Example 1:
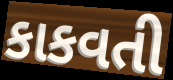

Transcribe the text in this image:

કાકવતી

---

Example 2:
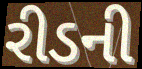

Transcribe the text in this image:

રીડની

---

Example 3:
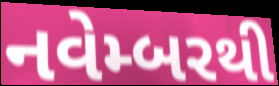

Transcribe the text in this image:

નવેમ્બરથી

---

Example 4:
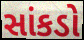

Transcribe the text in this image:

સાંકડો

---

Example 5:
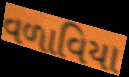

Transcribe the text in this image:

વળાવિયા